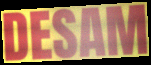
DESAM